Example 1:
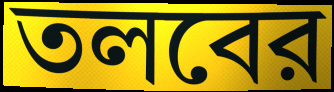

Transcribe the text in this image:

তলবের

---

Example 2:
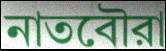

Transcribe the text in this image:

নাতবৌরা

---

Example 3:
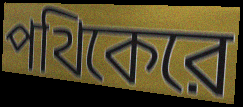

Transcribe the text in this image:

পথিকেরে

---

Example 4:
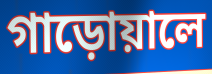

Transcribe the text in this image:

গাড়োয়ালে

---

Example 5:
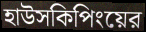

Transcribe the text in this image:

হাউসকিপিংয়ের